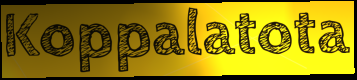
Koppalatota